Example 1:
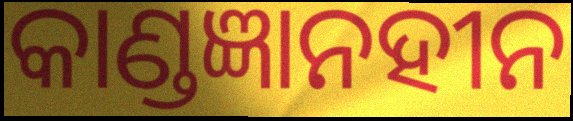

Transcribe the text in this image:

କାଣ୍ଡଜ୍ଞାନହୀନ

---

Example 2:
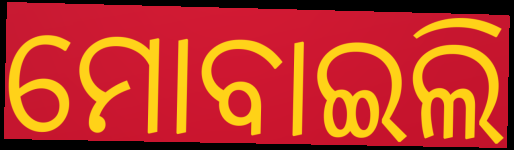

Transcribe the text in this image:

ମୋବାଇଲି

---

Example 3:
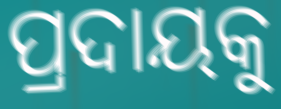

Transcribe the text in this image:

ପ୍ରଦାୟକୁ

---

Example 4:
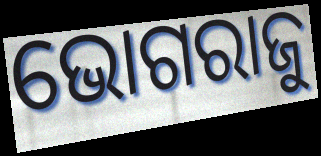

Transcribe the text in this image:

ଭୋଗରାଜୁ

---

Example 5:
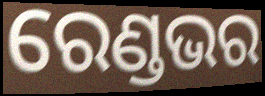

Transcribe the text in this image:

ରେଣ୍ଡଭର